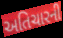
અતિચારની